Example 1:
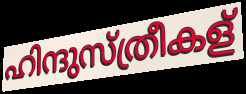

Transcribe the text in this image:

ഹിന്ദുസ്ത്രീകള്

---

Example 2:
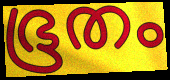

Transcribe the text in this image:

ഭൂതം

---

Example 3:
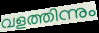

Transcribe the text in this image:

വളത്തിന്നും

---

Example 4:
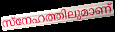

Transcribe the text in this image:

സ്നേഹത്തിലുമാണ്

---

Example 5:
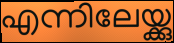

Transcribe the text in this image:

എന്നിലേയ്ക്കു